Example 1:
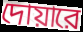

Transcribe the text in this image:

দোয়ারে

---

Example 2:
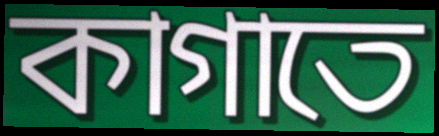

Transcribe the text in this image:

কাগাতে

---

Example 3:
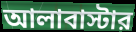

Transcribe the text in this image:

আলাবাস্টার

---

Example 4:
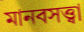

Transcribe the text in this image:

মানবসত্ত্বা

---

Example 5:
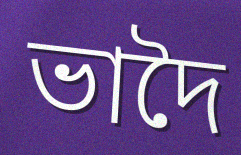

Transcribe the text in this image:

ভাদৈ